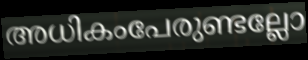
അധികംപേരുണ്ടല്ലോ